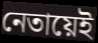
নেতায়েই